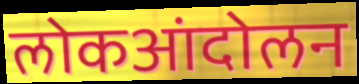
लोकआंदोलन